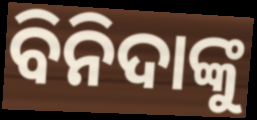
ବିନିଦାଙ୍କୁ